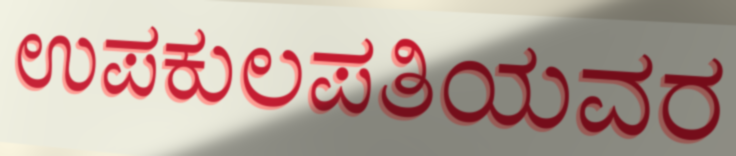
ಉಪಕುಲಪತಿಯವರ